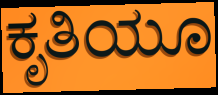
ಕೃತಿಯೂ